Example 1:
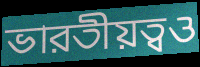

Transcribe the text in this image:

ভারতীয়ত্বও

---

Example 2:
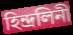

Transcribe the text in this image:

হিন্দ্রলিনী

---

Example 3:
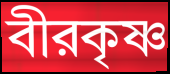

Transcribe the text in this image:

বীরকৃষ্ণ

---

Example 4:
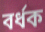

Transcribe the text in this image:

বর্ধক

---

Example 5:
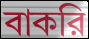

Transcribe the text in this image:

বাকরি